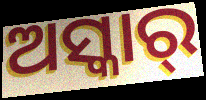
ଅସ୍କାର୍